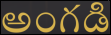
అంగడి